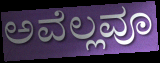
ಅವೆಲ್ಲವೂ